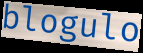
blogulo